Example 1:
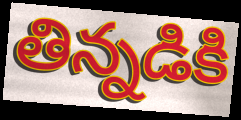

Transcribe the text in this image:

తిన్నడికి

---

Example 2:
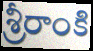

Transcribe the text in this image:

శ్రీరాంకి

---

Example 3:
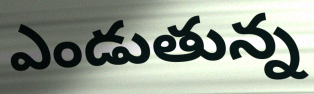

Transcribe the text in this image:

ఎండుతున్న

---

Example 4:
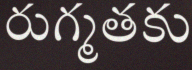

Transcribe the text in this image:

రుగ్మతకు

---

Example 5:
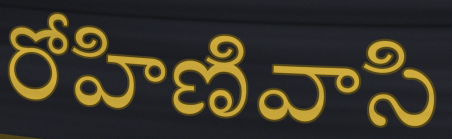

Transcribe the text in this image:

రోహిణివాసి